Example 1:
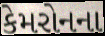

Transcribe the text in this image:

કેમરોનના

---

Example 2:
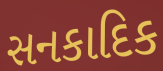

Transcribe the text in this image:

સનકાદિક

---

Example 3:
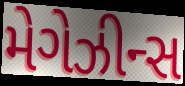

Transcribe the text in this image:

મેગેઝીન્સ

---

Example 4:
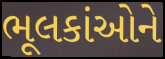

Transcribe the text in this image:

ભૂલકાંઓને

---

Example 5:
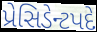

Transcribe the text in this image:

પ્રેસિડેન્ટપદે